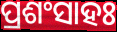
ପ୍ରଶଂସାହଃ